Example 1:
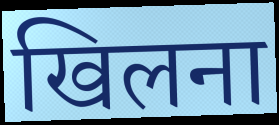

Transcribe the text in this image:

खिलना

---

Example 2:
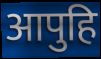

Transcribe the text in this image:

आपुहि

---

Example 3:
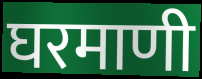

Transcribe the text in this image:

घरमाणी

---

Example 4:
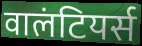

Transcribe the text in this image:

वालंटियर्स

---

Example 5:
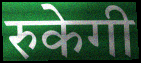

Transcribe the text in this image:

रुकेगी